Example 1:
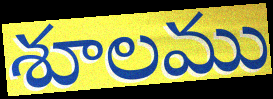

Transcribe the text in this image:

శూలము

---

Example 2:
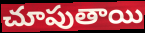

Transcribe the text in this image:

చూపుతాయి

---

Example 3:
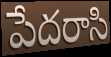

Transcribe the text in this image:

పేదరాసి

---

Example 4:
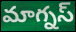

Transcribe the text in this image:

మాగ్నస్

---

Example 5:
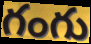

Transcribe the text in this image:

గంగు